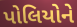
પોલિયોને